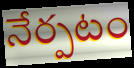
నేర్పటం